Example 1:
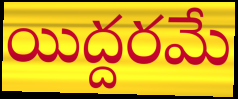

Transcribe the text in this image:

యిద్దరమే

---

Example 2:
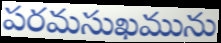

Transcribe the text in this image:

పరమసుఖమును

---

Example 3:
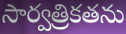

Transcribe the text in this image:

సార్వత్రికతను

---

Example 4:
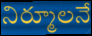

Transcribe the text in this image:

నిర్మూలనే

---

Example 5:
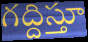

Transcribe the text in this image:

గద్దిస్తూ